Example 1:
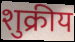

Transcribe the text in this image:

शुक्रीय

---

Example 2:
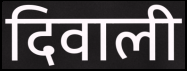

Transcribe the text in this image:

दिवाली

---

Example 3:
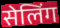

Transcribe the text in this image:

सेलिंग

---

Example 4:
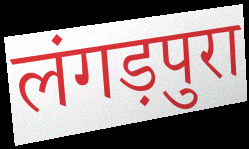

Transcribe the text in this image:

लंगड़पुरा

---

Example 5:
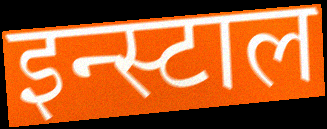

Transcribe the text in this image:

इन्स्टाल